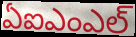
ఏఐఎంఎల్